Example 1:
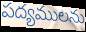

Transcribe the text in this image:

పద్యములను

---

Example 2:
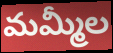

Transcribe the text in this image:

మమ్మీల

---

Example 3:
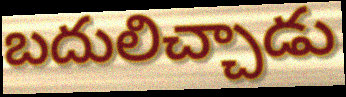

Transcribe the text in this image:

బదులిచ్చాడు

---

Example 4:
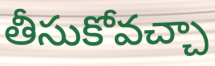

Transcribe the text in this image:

తీసుకోవచ్చా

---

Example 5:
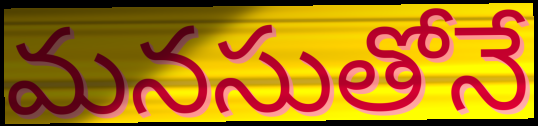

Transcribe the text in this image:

మనసుతోనే